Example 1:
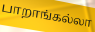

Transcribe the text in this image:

பாறாங்கல்லா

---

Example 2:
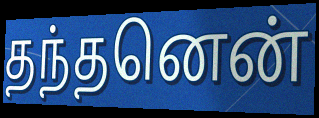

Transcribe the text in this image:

தந்தனென்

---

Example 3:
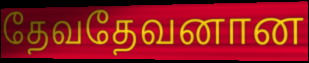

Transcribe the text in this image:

தேவதேவனான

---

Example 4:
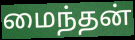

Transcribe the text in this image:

மைந்தன்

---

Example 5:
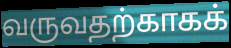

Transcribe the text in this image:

வருவதற்காகக்